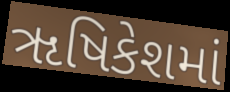
ૠષિકેશમાં